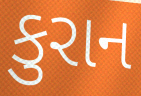
કુરાન